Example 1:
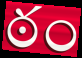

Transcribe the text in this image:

ఠం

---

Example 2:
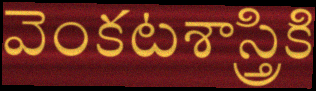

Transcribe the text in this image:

వెంకటశాస్త్రికి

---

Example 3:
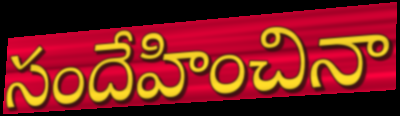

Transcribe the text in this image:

సందేహించినా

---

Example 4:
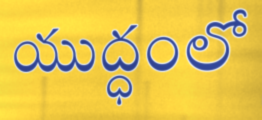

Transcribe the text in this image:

యుద్ధంలో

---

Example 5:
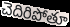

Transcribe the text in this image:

చెదిరిపోతూ